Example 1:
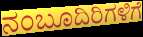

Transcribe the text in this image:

ನಂಬೂದಿರಿಗಳಿಗೆ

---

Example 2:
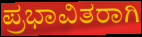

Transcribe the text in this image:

ಪ್ರಭಾವಿತರಾಗಿ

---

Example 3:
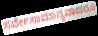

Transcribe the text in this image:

ಸರ್ವೇಸಾಮಾನ್ಯವಾದರೂ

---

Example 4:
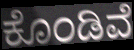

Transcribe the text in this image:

ಕೊಂಡಿವೆ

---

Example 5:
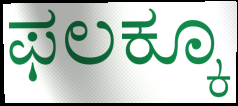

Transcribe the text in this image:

ಫಲಕ್ಕೂ